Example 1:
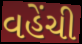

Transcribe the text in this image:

વહેંચી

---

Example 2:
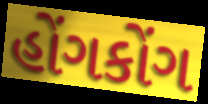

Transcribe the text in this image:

હોંગકોંગ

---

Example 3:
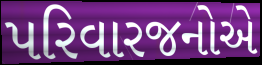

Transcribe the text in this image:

પરિવારજનોએ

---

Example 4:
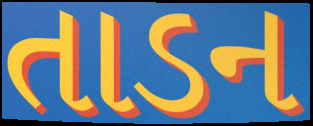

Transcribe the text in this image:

તાડન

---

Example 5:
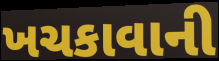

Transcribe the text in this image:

ખચકાવાની